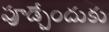
పూడ్చేందుకు